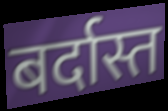
बर्दास्त